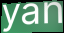
yan